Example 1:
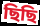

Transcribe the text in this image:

ছিছি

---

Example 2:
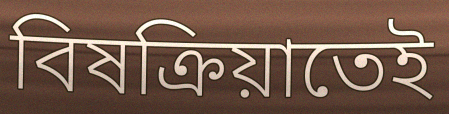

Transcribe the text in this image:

বিষক্রিয়াতেই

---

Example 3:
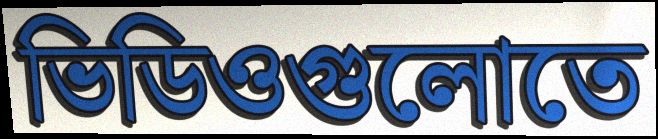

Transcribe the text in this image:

ভিডিওগুলোতে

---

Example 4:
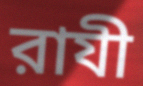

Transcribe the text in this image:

রাযী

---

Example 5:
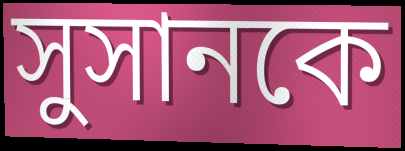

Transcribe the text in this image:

সুসানকে